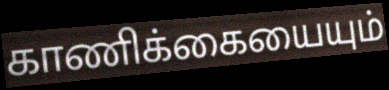
காணிக்கையையும்